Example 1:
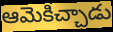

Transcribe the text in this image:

ఆమెకిచ్చాడు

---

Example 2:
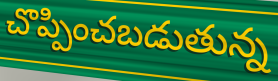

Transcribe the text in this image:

చొప్పించబడుతున్న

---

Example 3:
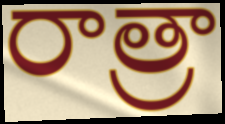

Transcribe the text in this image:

రాత్రా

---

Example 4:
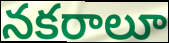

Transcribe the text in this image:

నకరాలూ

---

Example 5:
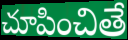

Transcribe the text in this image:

చూపించితే